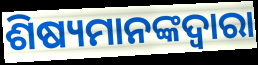
ଶିଷ୍ୟମାନଙ୍କଦ୍ୱାରା